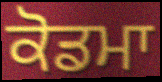
ਕੋਡਮਾ